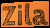
Zila